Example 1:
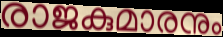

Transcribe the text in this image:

രാജകുമാരനും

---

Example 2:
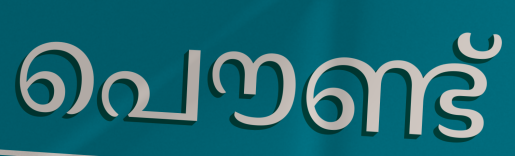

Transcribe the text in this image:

പൌണ്ട്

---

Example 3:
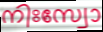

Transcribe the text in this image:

നിഃസ്വോ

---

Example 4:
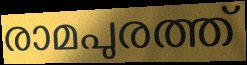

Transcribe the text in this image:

രാമപുരത്ത്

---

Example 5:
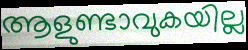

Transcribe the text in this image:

ആളുണ്ടാവുകയില്ല